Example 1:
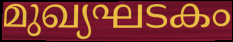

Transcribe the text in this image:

മുഖ്യഘടകം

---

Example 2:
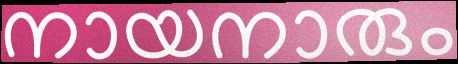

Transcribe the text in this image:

നായനാരും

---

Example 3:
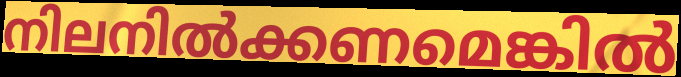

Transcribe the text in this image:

നിലനിൽക്കണമെങ്കിൽ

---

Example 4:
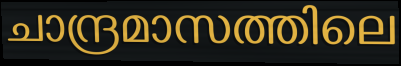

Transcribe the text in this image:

ചാന്ദ്രമാസത്തിലെ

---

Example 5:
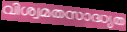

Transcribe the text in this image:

വിശ്വമതസാദ്ധ്യത